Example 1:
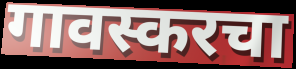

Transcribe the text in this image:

गावस्करचा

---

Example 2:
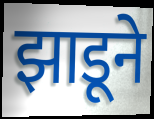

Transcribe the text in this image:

झाडूने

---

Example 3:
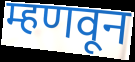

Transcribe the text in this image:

म्हणवून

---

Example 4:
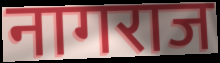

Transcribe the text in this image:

नागराज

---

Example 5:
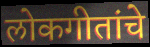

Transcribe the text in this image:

लोकगीतांचे